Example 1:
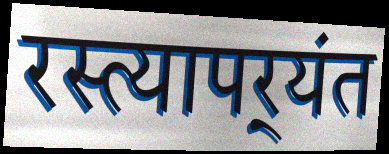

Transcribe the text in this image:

रस्त्यापर्यंत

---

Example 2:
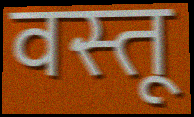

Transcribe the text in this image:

वस्तू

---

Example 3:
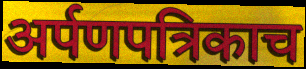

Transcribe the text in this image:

अर्पणपत्रिकाच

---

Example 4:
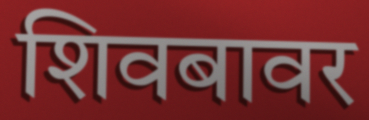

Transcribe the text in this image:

शिवबावर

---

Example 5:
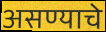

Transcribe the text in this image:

असण्याचे